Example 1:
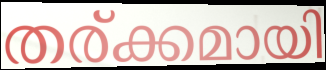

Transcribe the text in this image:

തര്ക്കമായി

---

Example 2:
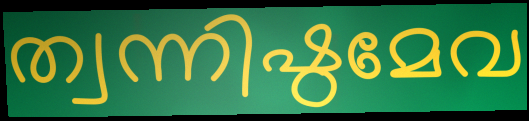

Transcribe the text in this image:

ത്വന്നിഷ്ഠമേവ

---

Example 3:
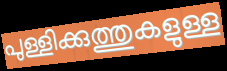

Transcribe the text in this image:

പുള്ളിക്കുത്തുകളുള്ള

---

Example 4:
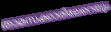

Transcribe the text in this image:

താമസക്കാരിലേറെയും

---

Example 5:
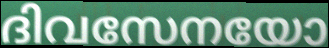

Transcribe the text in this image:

ദിവസേനയോ